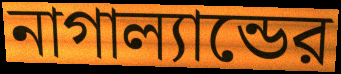
নাগাল্যান্ডের